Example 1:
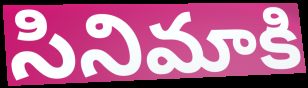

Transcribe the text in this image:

సినిమాకి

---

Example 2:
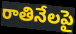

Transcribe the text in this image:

రాతినేలపై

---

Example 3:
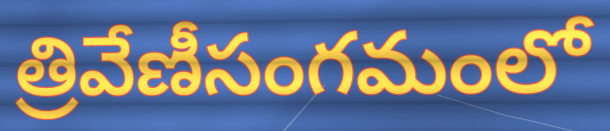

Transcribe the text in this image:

త్రివేణీసంగమంలో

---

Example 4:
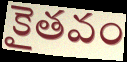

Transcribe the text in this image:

కైతవం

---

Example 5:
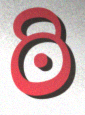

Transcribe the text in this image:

ఠి